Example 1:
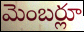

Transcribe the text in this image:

మెంబర్లూ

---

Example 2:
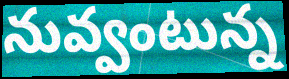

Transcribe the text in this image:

నువ్వంటున్న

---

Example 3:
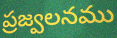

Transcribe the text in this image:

ప్రజ్వలనము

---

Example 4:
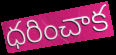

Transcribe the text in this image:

ధరించాక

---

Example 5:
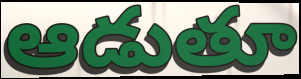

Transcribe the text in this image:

ఆడుతూ